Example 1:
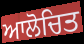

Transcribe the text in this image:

ਆਲੋਚਿਤ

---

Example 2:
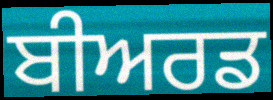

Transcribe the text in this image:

ਬੀਅਰਡ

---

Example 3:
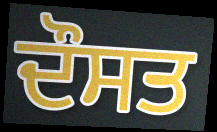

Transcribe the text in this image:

ਦੌਸਤ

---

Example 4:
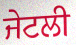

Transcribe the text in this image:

ਜੇਟਲੀ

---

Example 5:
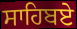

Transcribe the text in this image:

ਸਾਹਿਬਏ